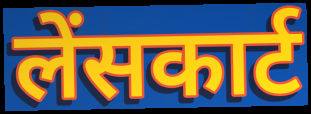
लेंसकार्ट